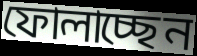
ফোলাচ্ছেন